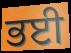
ਭਈ